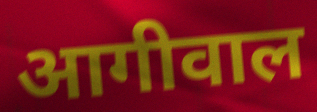
आगीवाल